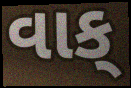
વાક્